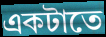
একটাতে